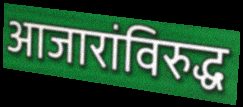
आजारांविरुद्ध